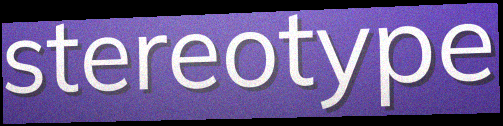
stereotype